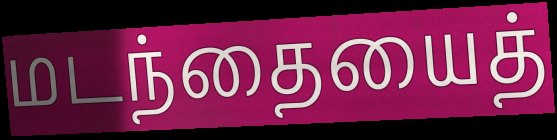
மடந்தையைத்